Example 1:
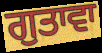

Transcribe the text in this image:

ਗੁਤਾਵਾ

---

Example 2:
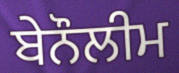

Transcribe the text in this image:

ਬੇਨੌਲੀਮ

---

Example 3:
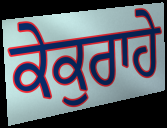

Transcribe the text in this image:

ਕੇਕੁਰਾਹੇ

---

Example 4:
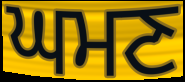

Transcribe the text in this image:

ਘਮਣ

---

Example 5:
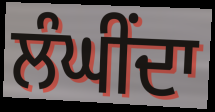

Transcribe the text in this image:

ਲੰਘੀਂਦਾ